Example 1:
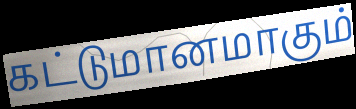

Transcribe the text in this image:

கட்டுமானமாகும்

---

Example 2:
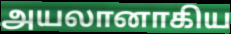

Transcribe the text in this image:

அயலானாகிய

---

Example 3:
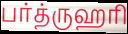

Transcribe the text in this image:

பர்த்ருஹரி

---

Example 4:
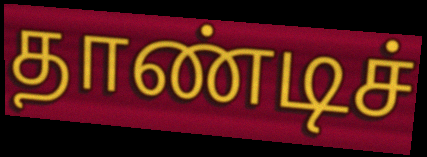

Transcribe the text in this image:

தாண்டிச்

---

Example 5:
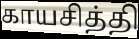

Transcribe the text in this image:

காயசித்தி